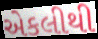
એકલીથી